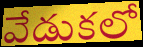
వేడుకలో